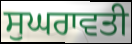
ਸੁਘਰਾਵਤੀ